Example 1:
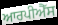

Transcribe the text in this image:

ਆਰਪੀਐੱਸ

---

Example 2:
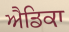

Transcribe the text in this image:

ਐਡਿਕਾ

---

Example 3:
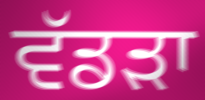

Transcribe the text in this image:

ਵੱਡਡ਼ਾ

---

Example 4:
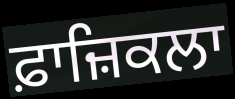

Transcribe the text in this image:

ਫ਼ਾਜ਼ਿਕਲਾ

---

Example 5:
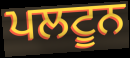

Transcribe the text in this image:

ਪਲਟੂਨ